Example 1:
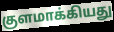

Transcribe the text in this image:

குளமாக்கியது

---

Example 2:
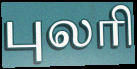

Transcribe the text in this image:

புலரி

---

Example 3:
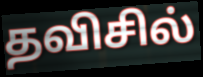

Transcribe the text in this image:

தவிசில்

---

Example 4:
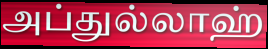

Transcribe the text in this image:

அப்துல்லாஹ்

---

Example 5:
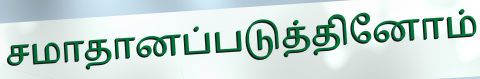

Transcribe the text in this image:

சமாதானப்படுத்தினோம்